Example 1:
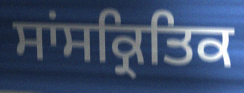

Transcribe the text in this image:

ਸਾਂਸਕ੍ਰਿਤਿਕ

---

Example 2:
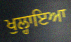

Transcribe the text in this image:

ਖੁਲ੍ਹਾਇਆ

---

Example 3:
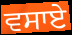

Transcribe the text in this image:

ਵਸਾਏ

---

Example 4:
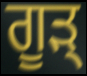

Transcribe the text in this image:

ਗੂੜ੍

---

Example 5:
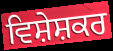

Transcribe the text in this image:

ਵਿਸ਼ੇਸ਼ਕਰ